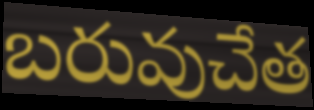
బరువుచేత